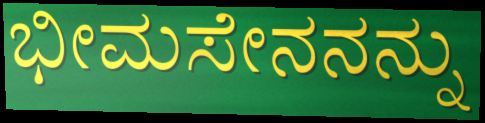
ಭೀಮಸೇನನನ್ನು